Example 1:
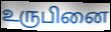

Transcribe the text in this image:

உருபினை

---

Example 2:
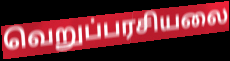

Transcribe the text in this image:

வெறுப்பரசியலை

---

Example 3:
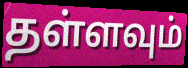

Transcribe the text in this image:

தள்ளவும்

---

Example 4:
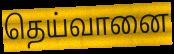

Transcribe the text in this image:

தெய்வானை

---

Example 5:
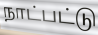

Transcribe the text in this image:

நாட்பட்டு